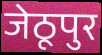
जेठूपुर